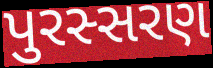
પુરસ્સરણ